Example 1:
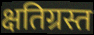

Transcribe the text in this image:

क्षतिग्रस्त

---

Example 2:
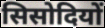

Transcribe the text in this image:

सिसोदियों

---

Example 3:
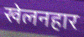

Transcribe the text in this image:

खेलनहार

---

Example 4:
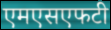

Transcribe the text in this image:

एमएसएफटी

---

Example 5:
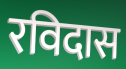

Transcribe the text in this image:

रविदास